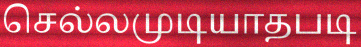
செல்லமுடியாதபடி